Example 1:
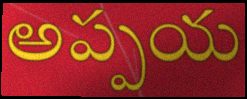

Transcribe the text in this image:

అప్పయ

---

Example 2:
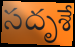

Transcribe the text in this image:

సదృశే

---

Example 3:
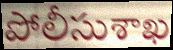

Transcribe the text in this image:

పోలీసుశాఖ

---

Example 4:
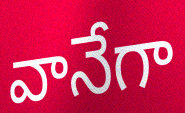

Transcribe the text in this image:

వానేగా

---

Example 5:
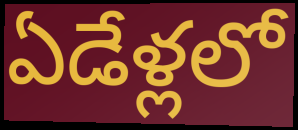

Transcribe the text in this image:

ఏడేళ్లలో